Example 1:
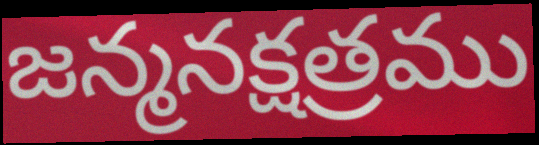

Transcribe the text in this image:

జన్మనక్షత్రము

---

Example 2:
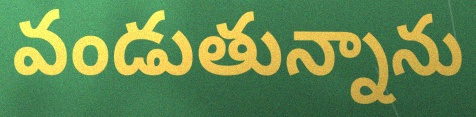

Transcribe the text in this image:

వండుతున్నాను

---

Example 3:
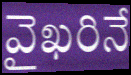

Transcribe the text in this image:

వైఖరినే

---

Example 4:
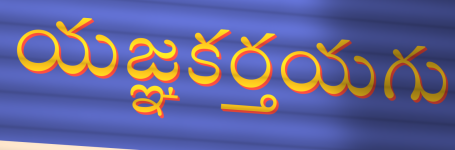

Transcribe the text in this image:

యజ్ఞకర్తయగు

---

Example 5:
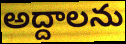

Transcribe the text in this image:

అద్దాలను